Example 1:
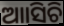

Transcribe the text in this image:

ଆାସିଚି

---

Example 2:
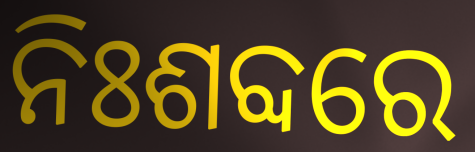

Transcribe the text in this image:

ନିଃଶବ୍ଦରେ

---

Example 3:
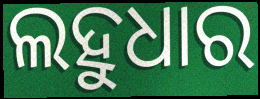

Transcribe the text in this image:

ଲହୁଧାର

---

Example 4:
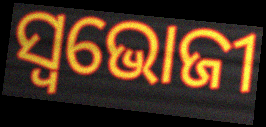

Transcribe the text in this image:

ସ୍ବଭୋଜୀ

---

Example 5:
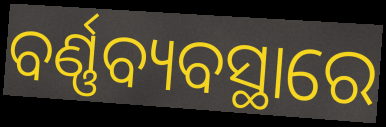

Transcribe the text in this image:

ବର୍ଣ୍ଣବ୍ୟବସ୍ଥାରେ